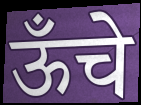
ऊँचे